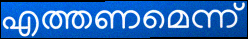
എത്തണമെന്ന്